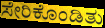
ಸೇರಿಕೊಂಡಿತು